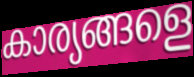
കാര്യങ്ങളെ